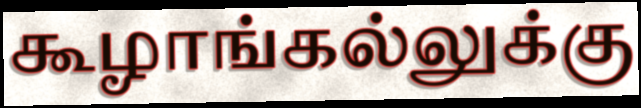
கூழாங்கல்லுக்கு